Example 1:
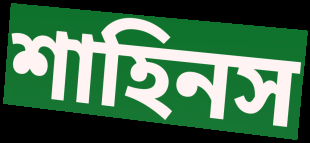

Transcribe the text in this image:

শাহিনস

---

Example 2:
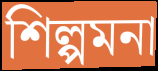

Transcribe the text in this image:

শিল্পমনা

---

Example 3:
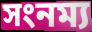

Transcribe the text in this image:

সংনম্য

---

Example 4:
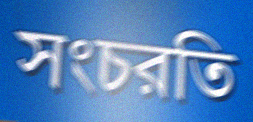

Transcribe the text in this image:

সংচরতি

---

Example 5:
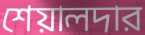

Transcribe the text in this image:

শেয়ালদার